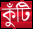
কুঁটি